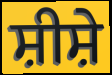
ਸ਼ੀਸ਼ੇ